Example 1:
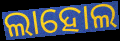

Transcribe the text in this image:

ଲାହୋଲ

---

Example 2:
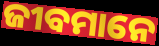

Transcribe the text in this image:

ଜୀବମାନେ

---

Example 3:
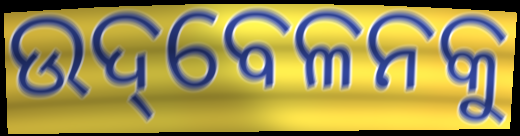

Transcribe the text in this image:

ଉଦ୍‌ବେଳନକୁ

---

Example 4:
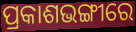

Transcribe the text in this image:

ପ୍ରକାଶଭଙ୍ଗୀରେ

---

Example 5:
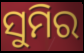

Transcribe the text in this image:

ସୁମିର